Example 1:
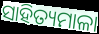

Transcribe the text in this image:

ସାହିତ୍ୟମାଳା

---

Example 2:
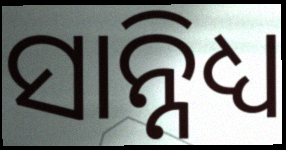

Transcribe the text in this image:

ସାନ୍ନିଧ୍ୟ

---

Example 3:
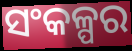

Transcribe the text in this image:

ସଂକଳ୍ପର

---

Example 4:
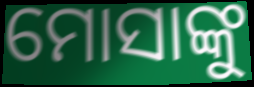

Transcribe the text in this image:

ମୋସାଙ୍କୁ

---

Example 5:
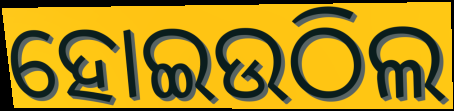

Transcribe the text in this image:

ହୋଇଉଠିଲ